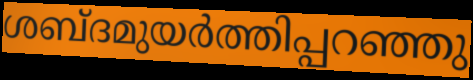
ശബ്ദമുയർത്തിപ്പറഞ്ഞു